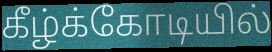
கீழ்க்கோடியில்